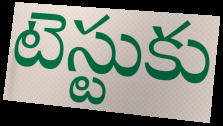
టెస్టుకు